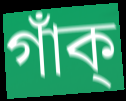
গাঁক্